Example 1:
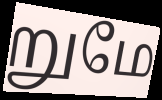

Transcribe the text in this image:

றுமே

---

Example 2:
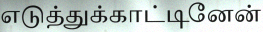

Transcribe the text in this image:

எடுத்துக்காட்டினேன்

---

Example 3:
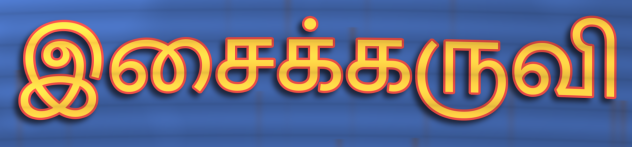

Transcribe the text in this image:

இசைக்கருவி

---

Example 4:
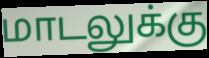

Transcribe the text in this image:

மாடலுக்கு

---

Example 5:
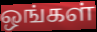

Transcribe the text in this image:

ஒங்கள்